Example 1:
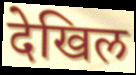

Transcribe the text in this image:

देखिल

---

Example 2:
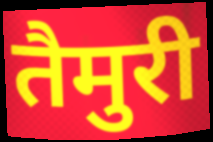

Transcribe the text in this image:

तैमुरी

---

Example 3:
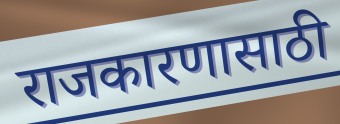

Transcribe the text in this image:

राजकारणासाठी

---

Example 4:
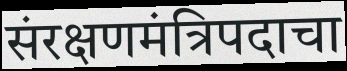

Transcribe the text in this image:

संरक्षणमंत्रिपदाचा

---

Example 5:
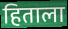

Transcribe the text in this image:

हिताला